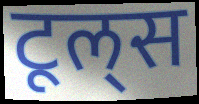
टूल्स